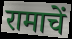
रामाचें